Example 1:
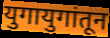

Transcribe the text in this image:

युगायुगांतून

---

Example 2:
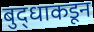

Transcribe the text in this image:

बुद्धाकडून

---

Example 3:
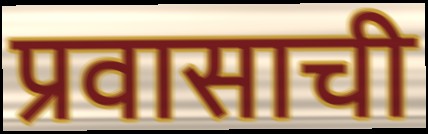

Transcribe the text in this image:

प्रवासाची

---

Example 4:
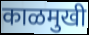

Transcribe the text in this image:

काळमुखी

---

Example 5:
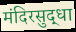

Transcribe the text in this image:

मंदिरसुद्धा